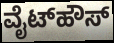
ವೈಟ್‌ಹೌಸ್